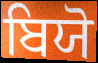
ਬਿਯੋ